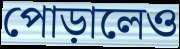
পোড়ালেও